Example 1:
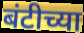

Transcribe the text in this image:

बंटीच्या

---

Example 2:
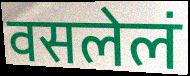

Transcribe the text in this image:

वसलेलं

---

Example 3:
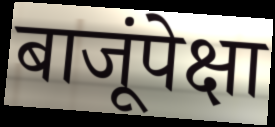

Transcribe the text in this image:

बाजूंपेक्षा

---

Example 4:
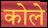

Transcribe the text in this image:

कोले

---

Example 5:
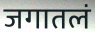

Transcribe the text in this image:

जगातलं